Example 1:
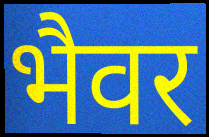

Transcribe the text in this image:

भैवर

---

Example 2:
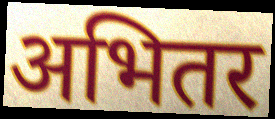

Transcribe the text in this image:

अभितर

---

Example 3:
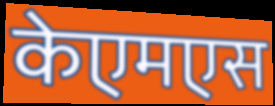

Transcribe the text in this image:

केएमएस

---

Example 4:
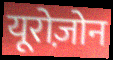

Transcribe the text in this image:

यूरोज़ोन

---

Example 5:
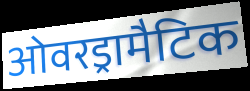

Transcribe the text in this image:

ओवरड्रामैटिक